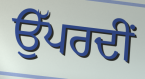
ਉੱਪਰਦੀਂ